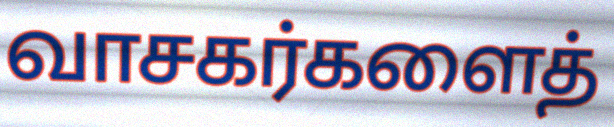
வாசகர்களைத்